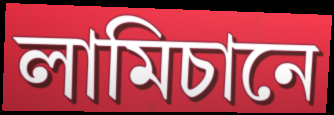
লামিচানে